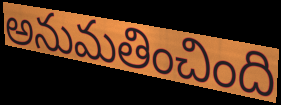
అనుమతించింది